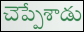
చెప్పేశాడు